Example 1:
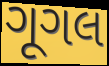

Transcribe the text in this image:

ગૂગલ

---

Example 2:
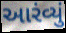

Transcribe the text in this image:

આરંવ્યું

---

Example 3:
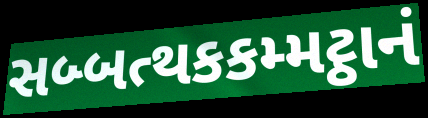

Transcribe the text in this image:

સબ્બત્થકકમ્મટ્ઠાનં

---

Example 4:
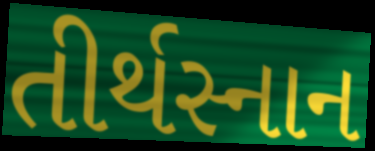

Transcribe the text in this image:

તીર્થસ્નાન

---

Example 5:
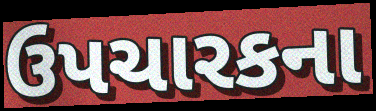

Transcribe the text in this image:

ઉપચારકના